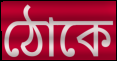
ঠোকে